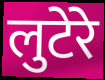
लुटेरे